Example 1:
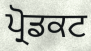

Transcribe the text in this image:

ਪ੍ਰੋਡਕਟ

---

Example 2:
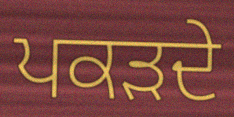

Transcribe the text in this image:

ਪਕੜਦੇ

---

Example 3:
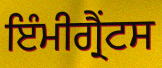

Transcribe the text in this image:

ਇੰਮੀਗ੍ਰੈਂਟਸ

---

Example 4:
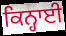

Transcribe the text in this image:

ਕਿਨ੍ਹਾਈ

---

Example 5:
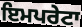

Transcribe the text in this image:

ਇਮਪਰੇਟਾ